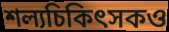
শল্যচিকিৎসকও